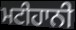
ਮਟੀਹਾਨੀ